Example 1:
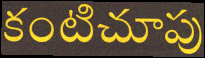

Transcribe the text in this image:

కంటిచూపు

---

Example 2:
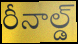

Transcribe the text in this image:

రీనాల్డ్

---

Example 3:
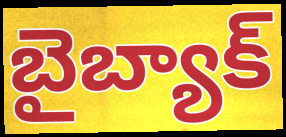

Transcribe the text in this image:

బైబ్యాక్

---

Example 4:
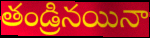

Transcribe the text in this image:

తండ్రినయినా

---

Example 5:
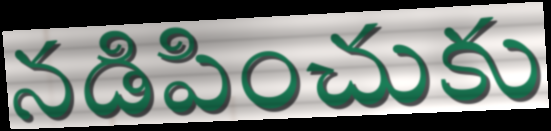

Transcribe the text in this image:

నడిపించుకు